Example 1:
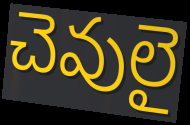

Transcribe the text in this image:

చెవులై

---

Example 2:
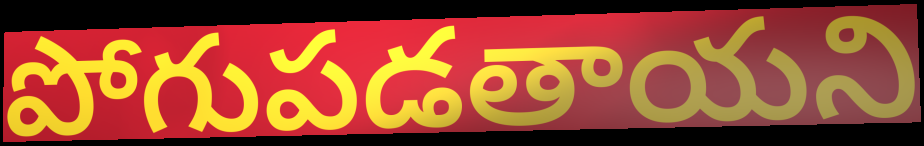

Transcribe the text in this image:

పోగుపడతాయని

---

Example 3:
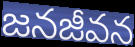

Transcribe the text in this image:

జనజీవన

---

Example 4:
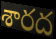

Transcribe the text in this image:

శారద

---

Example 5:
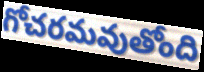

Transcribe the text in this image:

గోచరమవుతోంది